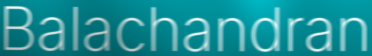
Balachandran